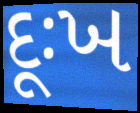
દૂઃખ